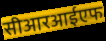
सीआरआईएफ